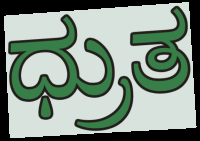
ಧ್ರುತ